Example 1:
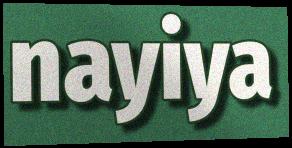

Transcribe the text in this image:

nayiya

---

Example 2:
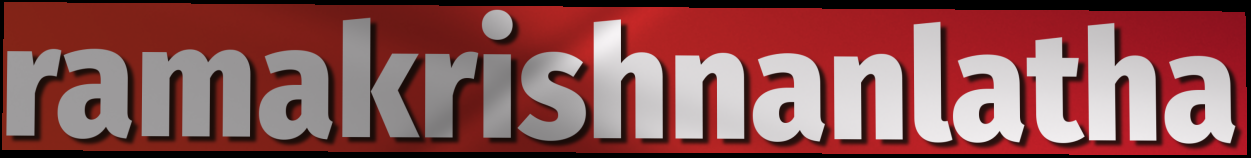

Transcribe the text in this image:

ramakrishnanlatha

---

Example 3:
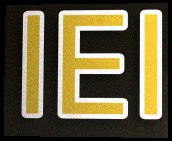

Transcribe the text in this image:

IEI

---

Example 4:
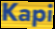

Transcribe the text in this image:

Kapi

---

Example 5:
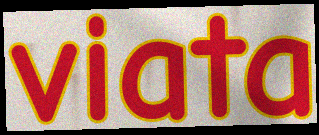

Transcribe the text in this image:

viata